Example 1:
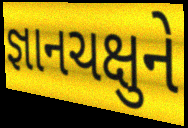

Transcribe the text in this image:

જ્ઞાનચક્ષુને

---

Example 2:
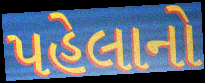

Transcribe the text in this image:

પહેલાનો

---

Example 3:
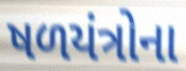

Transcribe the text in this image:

ષળયંત્રોના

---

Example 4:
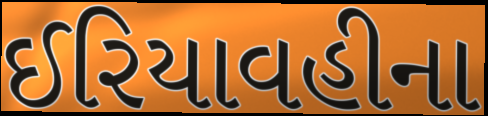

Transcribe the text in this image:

ઈરિયાવહીના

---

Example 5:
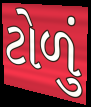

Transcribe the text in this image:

ટોળું